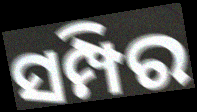
ସମ୍ପିର